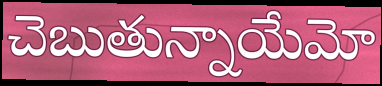
చెబుతున్నాయేమో